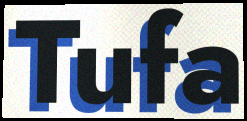
Tufa